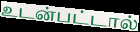
உடன்பட்டால்